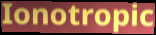
Ionotropic